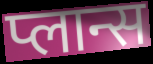
प्‍लान्‍स